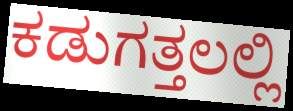
ಕಡುಗತ್ತಲಲ್ಲಿ